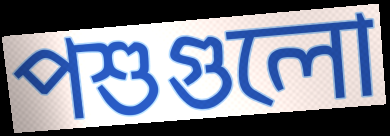
পশুগুলো